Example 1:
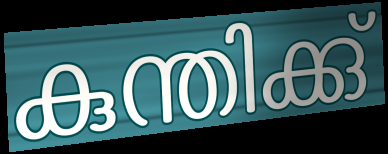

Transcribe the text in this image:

കുന്തിക്കു്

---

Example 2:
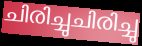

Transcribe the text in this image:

ചിരിച്ചുചിരിച്ചു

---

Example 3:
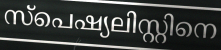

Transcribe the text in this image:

സ്പെഷ്യലിസ്റ്റിനെ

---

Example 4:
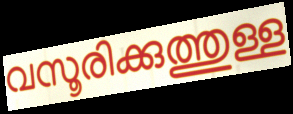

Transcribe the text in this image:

വസൂരിക്കുത്തുള്ള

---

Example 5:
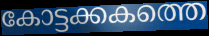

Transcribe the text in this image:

കോട്ടക്കകത്തെ